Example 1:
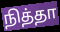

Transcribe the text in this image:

நித்தா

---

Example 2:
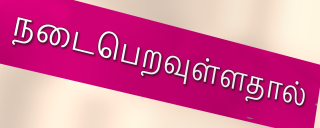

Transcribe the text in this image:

நடைபெறவுள்ளதால்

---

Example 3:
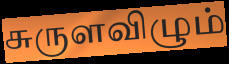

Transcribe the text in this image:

சுருளவிழும்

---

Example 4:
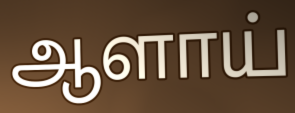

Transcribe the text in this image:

ஆளாய்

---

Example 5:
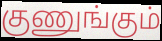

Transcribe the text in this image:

குணுங்கும்